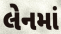
લેનમાં